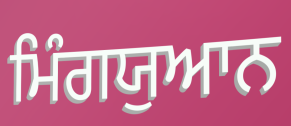
ਮਿੰਗਯੁਆਨ